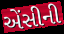
એંસીની